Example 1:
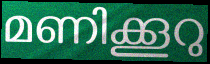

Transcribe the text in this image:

മണിക്കൂറു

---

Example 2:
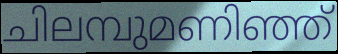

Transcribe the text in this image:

ചിലമ്പുമണിഞ്ഞ്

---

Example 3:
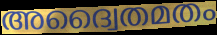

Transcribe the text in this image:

അദ്വൈതമതം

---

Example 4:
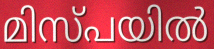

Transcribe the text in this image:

മിസ്പയിൽ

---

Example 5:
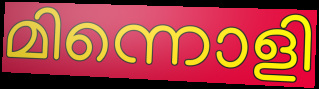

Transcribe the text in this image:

മിന്നൊളി